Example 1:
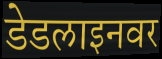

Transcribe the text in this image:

डेडलाइनवर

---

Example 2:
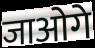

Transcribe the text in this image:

जाओगे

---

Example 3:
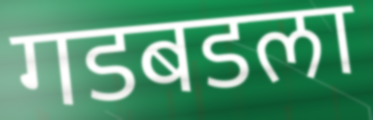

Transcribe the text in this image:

गडबडला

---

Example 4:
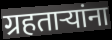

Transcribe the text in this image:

ग्रहताऱ्यांना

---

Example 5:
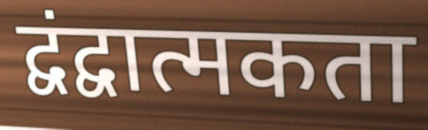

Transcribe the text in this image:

द्वंद्वात्मकता